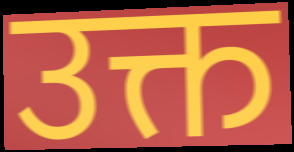
उक्त